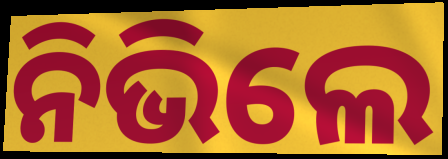
ନିଭିଲେ